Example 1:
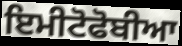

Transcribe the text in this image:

ਇਮੀਟੋਫੋਬੀਆ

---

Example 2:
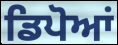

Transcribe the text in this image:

ਡਿਪੋਆਂ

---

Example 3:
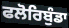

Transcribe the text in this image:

ਫਲੋਰਿਬੁੰਡਾ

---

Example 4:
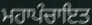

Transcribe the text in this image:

ਮਹਾਪੰਚਾਇਤ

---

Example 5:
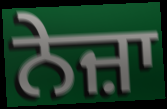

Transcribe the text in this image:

ਨੇਜ਼ਾ